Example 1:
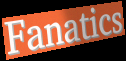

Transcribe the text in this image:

Fanatics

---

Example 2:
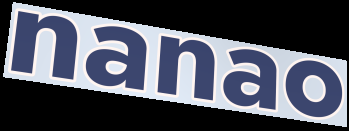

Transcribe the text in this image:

nanao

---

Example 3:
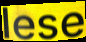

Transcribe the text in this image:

lese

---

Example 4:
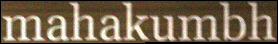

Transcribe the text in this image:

mahakumbh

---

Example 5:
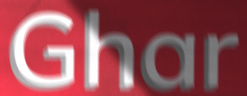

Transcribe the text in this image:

Ghar